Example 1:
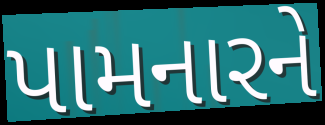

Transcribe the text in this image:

પામનારને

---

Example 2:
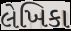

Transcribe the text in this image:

લેખિકા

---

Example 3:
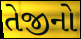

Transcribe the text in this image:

તેજીનો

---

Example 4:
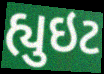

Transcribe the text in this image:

હ્યુઇટ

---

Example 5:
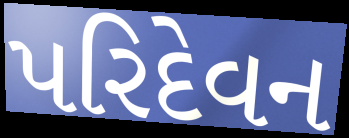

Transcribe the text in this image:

પરિદેવન